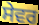
ਸੇਵਰ